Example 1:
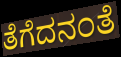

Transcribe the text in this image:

ತೆಗೆದನಂತೆ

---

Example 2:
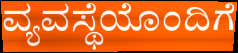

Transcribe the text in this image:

ವ್ಯವಸ್ಥೆಯೊಂದಿಗೆ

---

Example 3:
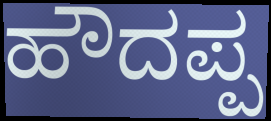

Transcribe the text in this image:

ಹೌದಪ್ಪ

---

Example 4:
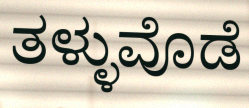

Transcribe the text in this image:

ತಳ್ಳುವೊಡೆ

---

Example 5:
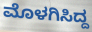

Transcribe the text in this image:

ಮೊಳಗಿಸಿದ್ದ